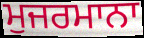
ਮੁਜਰਮਾਨਾ